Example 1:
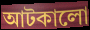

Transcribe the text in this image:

আটকালো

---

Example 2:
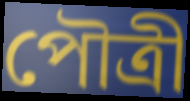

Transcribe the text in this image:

পৌত্রী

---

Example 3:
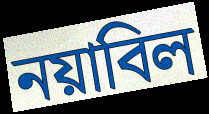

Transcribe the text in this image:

নয়াবিল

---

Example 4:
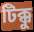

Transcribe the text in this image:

টিক্কু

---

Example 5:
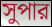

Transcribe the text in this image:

সুপার